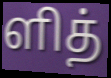
ளித்